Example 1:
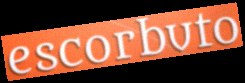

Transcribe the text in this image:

escorbuto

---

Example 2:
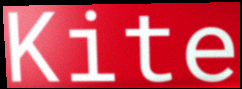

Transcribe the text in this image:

Kite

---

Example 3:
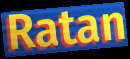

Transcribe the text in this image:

Ratan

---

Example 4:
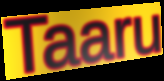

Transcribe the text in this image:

Taaru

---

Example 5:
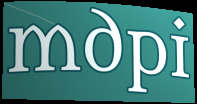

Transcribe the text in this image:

mdpi